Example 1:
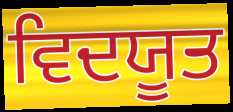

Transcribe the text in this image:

ਵਿਦਯੂਤ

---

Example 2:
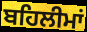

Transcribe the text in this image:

ਬਹਿਲੀਮਾਂ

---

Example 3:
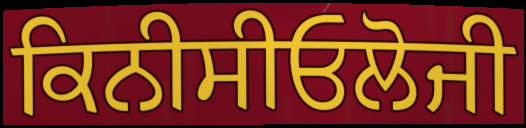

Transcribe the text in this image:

ਕਿਨੀਸੀਓਲੋਜੀ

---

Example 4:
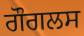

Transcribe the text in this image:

ਗੌਗਲਸ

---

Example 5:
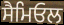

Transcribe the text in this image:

ਸੈਮਿਓਲ